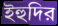
ইহুদির